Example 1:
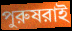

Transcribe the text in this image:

পুরুষরাই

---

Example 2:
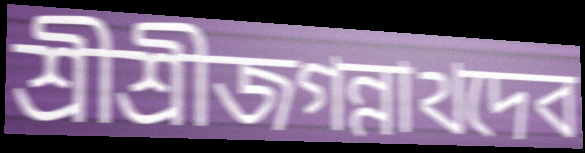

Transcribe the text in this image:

শ্রীশ্রীজগন্নাথদেব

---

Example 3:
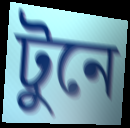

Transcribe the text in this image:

টুনে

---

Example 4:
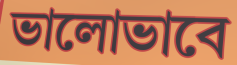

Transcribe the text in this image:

ভালোভাবে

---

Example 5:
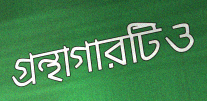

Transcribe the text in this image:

গ্রন্থাগারটিও